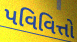
પવિવિત્તો